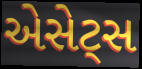
એસેટ્સ